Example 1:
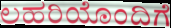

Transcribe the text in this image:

ಲಹರಿಯೊಂದಿಗೆ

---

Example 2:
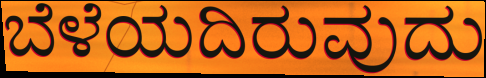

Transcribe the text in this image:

ಬೆಳೆಯದಿರುವುದು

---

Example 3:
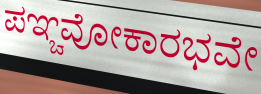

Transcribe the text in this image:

ಪಞ್ಚವೋಕಾರಭವೇ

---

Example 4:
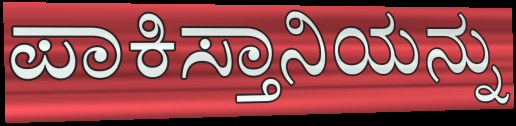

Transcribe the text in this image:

ಪಾಕಿಸ್ತಾನಿಯನ್ನು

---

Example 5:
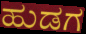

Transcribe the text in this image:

ಹುಡಗ